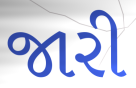
જારી